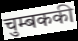
चुम्बककी